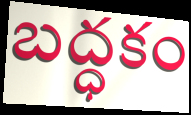
బద్ధకం